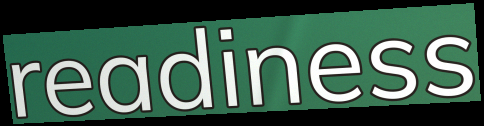
readiness